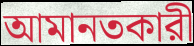
আমানতকারী